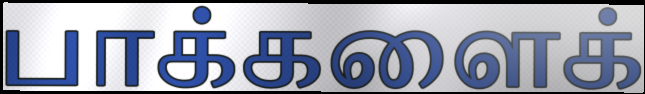
பாக்களைக்